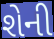
શેની